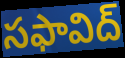
సఫావిద్